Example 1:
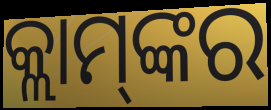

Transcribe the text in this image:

କ୍ଲାମ୍‌ଙ୍କର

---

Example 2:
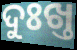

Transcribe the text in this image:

ଦୁଃଖ୍ତ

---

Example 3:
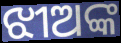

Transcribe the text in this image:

ଝୀଅଙ୍କ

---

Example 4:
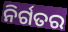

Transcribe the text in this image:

ନିର୍ଗତର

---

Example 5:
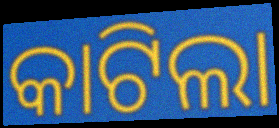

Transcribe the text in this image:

କାଟିଲା